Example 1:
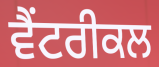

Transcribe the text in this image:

ਵੈਂਟਰੀਕਲ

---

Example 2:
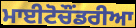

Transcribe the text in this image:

ਮਾਈਟੋਚੌਂਡਰੀਆ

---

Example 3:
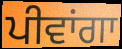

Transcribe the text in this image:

ਪੀਵਾਂਗਾ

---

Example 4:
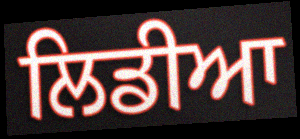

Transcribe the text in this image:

ਲਿਡੀਆ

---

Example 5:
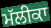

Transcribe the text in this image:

ਮੱਲੀਕਾ